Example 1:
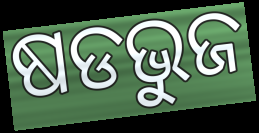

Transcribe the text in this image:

ଷଡଭୁଜ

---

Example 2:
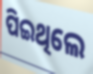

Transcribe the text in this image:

ପିଇଥିଲେ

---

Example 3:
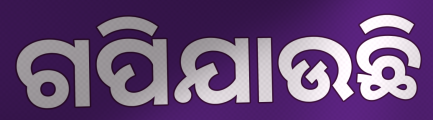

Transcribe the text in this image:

ଗପିଯାଉଛି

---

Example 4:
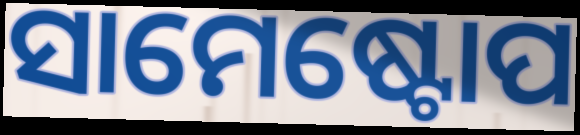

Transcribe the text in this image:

ସାମେଷ୍ଟୋପ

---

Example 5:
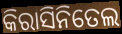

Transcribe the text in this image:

କିରାସିନିତେଲ